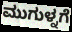
ಮುಗುಳ್ನಗೆ